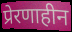
प्रेरणाहीन